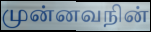
முன்னவநின்